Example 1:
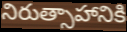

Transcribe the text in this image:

నిరుత్సాహానికి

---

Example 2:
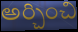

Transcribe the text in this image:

అర్చించి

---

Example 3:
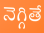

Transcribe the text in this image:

నెగ్గితే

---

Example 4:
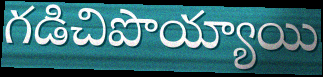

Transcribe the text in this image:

గడిచిపొయ్యాయి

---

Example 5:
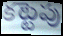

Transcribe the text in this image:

కట్టెపు